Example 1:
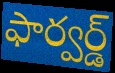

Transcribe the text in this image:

ఫార్వర్డ్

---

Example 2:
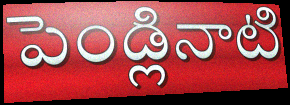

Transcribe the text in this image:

పెండ్లినాటి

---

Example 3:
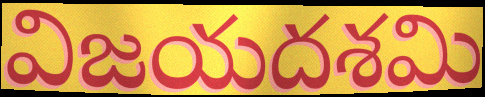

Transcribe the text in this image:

విజయదశమి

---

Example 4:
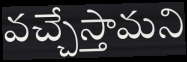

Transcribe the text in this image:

వచ్చేస్తామని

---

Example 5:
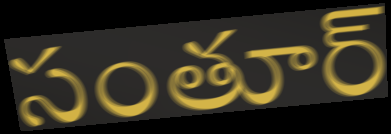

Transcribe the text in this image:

సంతూర్